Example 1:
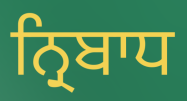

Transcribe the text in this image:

ਨ੍ਰਿਬਾਧ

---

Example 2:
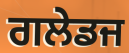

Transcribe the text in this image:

ਗਲੇਡਜ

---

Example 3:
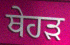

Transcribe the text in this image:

ਥੇਹੜ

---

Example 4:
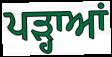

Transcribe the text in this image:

ਪੜ੍ਹਾਆਂ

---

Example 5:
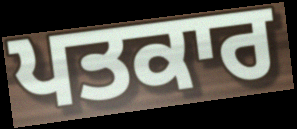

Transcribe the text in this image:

ਪਤਕਾਰ